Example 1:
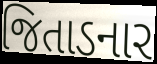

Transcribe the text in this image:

જિતાડનાર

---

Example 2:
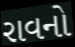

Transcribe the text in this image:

રાવનો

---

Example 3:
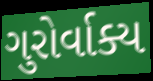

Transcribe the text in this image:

ગુરોર્વાક્ય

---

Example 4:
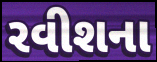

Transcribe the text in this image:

રવીશના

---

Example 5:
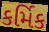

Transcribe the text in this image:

કર્મિક